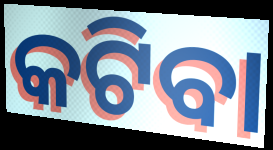
କଟିବା